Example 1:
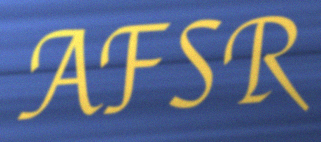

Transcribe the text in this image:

AFSR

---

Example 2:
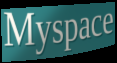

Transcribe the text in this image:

Myspace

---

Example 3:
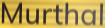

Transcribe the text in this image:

Murthal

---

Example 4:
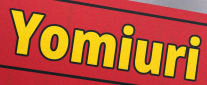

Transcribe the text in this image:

Yomiuri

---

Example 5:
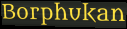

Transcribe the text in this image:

Borphukan